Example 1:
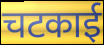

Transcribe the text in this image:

चटकाई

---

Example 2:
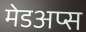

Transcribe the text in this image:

मेडअप्स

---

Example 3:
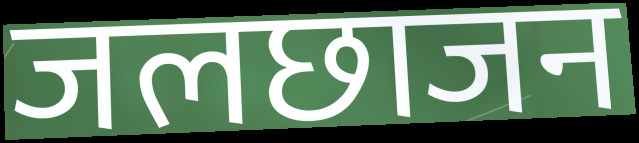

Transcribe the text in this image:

जलछाजन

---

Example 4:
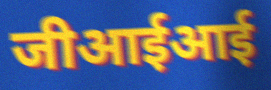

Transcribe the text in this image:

जीआईआई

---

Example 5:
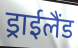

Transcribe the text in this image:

ड्राईलैंड